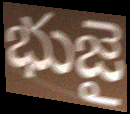
భుజై